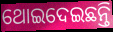
ଥୋଇଦେଇଛନ୍ତି